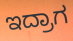
ಇದ್ರಾಗ